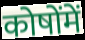
कोषोंमें